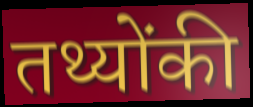
तथ्योंकी